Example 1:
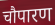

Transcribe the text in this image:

चौपारण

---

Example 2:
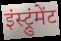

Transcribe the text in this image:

इंस्ट्रुंमेंट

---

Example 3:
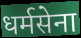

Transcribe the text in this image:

धर्मसेना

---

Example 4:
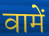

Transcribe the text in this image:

वामें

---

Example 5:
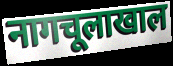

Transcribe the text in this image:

नागचूलाखाल